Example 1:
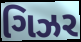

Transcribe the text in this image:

ગિઝર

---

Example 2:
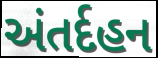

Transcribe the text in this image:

અંતર્દહન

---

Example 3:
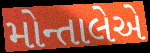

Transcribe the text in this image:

મોન્તાલેએ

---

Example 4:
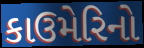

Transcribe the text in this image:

કાઉમેરિનો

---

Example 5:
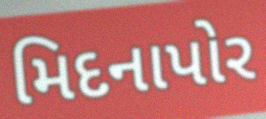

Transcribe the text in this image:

મિદનાપોર